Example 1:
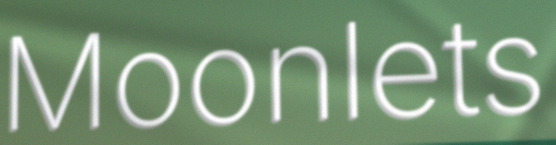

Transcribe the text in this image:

Moonlets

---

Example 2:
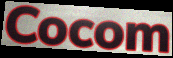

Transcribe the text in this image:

Cocom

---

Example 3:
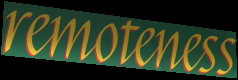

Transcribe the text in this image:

remoteness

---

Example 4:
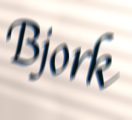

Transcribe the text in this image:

Bjork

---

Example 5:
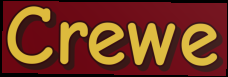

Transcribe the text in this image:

Crewe